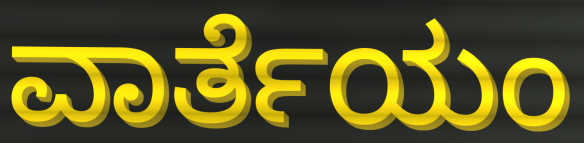
ವಾರ್ತೆಯಂ